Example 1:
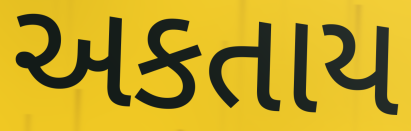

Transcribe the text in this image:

અકતાય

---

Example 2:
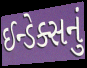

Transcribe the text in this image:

ઈન્ડેક્સનું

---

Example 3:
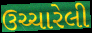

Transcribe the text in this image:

ઉચ્ચારેલી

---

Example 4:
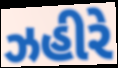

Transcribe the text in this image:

ઝહીરે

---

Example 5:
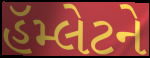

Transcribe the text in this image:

હૅમ્લેટને